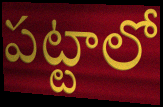
పట్టాలో